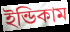
ইন্ডিকাম